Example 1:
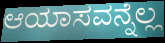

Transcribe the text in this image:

ಆಯಾಸವನ್ನೆಲ್ಲ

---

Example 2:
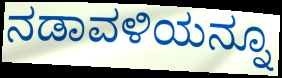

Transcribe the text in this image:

ನಡಾವಳಿಯನ್ನೂ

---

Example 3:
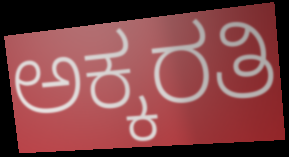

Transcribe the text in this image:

ಅಕ್ಕರತಿ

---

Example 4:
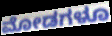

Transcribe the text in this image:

ಮೋಡಗಳೂ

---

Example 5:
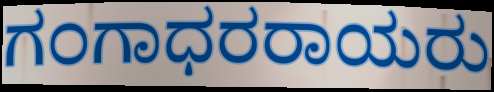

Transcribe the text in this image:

ಗಂಗಾಧರರಾಯರು